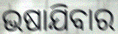
ଭଷାଯିବାର